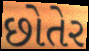
છોતેર